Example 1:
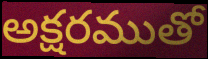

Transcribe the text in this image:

అక్షరముతో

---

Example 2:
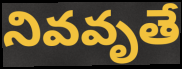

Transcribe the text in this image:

నివవృతే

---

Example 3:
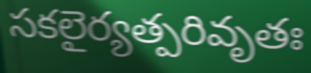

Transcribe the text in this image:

సకలైర్యత్పరివృతః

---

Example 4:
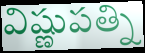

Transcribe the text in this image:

విష్ణుపత్ని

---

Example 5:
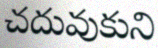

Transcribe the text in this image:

చదువుకుని